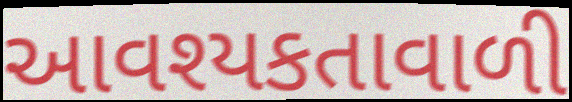
આવશ્યકતાવાળી